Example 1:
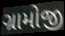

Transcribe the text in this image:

ગ્રામોજી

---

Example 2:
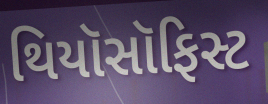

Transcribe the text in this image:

થિયૉસૉફિસ્ટ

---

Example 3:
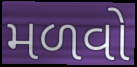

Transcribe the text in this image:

મળવો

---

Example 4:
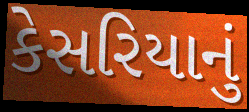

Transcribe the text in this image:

કેસરિયાનું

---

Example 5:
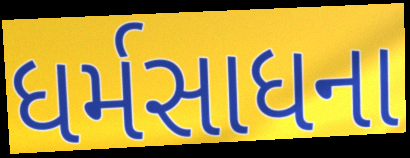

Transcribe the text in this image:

ધર્મસાધના